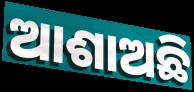
ଆଶାଅଛି